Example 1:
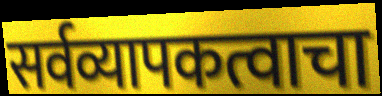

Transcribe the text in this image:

सर्वव्यापकत्वाचा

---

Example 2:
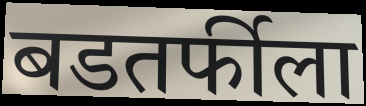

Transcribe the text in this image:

बडतर्फीला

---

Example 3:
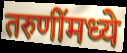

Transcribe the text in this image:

तरुणींमध्ये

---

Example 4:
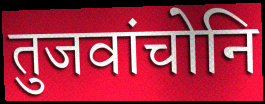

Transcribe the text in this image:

तुजवांचोनि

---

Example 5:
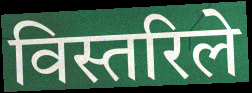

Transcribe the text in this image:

विस्तरिले